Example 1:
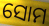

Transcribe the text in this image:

ସୋମ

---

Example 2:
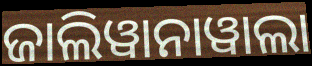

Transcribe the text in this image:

ଜାଲିୱାନାୱାଲା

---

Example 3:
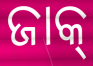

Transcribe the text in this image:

ଜାକ୍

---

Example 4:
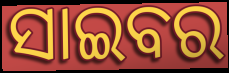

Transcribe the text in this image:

ସାଇବର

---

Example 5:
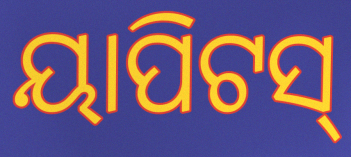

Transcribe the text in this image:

ୟାପିଟସ୍